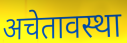
अचेतावस्था